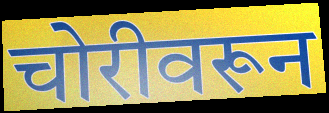
चोरीवरून